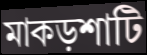
মাকড়শাটি